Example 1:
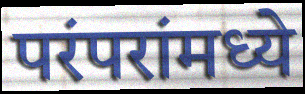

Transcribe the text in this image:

परंपरांमध्ये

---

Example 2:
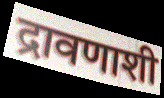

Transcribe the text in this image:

द्रावणाशी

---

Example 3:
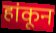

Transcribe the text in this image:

हांकून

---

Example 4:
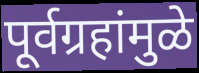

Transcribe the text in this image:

पूर्वग्रहांमुळे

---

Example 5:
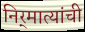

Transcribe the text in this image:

निर्मात्यांची